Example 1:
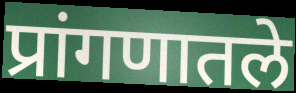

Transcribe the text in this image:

प्रांगणातले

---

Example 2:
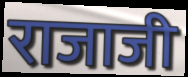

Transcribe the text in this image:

राजाजी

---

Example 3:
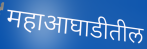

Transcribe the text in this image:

महाआघाडीतील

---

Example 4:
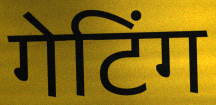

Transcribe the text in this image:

गेटिंग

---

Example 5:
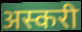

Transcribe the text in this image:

अस्करी